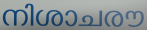
നിശാചരൗ